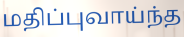
மதிப்புவாய்ந்த